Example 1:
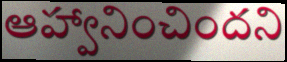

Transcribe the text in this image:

ఆహ్వానించిందని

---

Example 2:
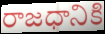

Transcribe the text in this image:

రాజధానికి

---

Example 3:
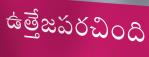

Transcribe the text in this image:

ఉత్తేజపరచింది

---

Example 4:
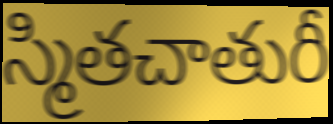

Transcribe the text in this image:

స్మితచాతురీ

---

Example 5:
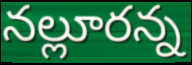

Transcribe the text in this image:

నల్లూరన్న